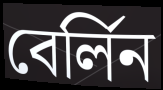
বের্লিন